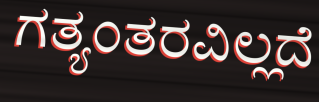
ಗತ್ಯಂತರವಿಲ್ಲದೆ